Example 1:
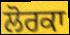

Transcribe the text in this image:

ਲੋਰਕਾ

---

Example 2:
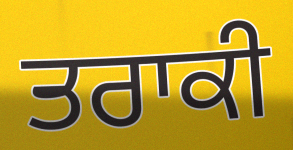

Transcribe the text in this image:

ਤਰਾਕੀ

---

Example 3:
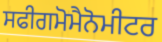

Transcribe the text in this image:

ਸਫੀਗਮੋਮੈਨੋਮੀਟਰ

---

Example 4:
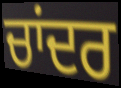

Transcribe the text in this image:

ਚਾਂਦਰ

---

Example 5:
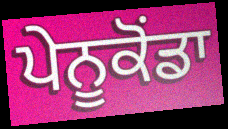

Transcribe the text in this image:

ਪੇਨੂਕੋਂਡਾ